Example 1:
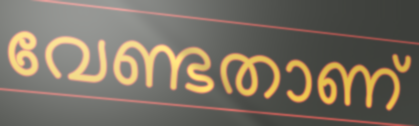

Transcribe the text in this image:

വേണ്ടതാണ്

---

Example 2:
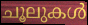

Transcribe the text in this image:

ചൂലുകൾ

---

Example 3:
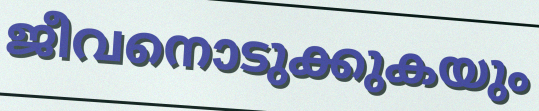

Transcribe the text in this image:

ജീവനൊടുക്കുകയും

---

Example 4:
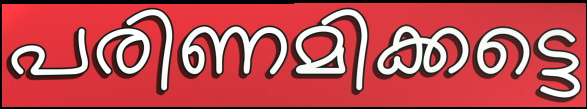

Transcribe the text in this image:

പരിണമിക്കട്ടെ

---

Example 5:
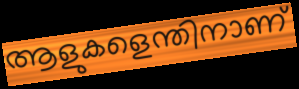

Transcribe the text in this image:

ആളുകളെന്തിനാണ്